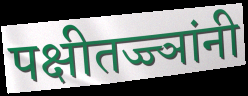
पक्षीतज्ज्ञांनी